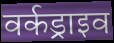
वर्कड्राइव